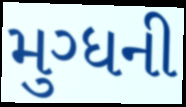
મુગ્ધની